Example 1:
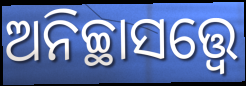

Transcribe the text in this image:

ଅନିଚ୍ଛାସତ୍ତ୍ବେ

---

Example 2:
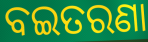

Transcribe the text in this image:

ବଇତରଣା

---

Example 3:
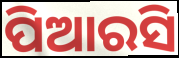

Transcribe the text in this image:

ପିଆରସି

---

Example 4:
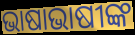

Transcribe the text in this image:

ଭାଷାଭାଷୀଙ୍କ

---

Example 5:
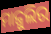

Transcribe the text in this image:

ମାଜୁଲିର